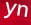
yn